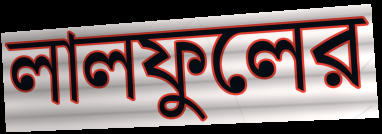
লালফুলের